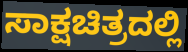
ಸಾಕ್ಷಚಿತ್ರದಲ್ಲಿ